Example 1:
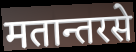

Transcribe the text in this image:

मतान्तरसे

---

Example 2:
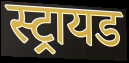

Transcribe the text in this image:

स्ट्रायड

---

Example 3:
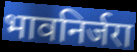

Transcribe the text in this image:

भावनिर्जरा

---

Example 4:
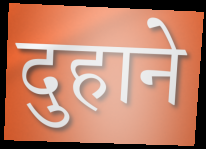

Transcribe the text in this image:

दुहाने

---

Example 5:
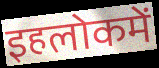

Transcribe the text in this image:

इहलोकमें